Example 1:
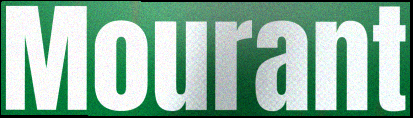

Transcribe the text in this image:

Mourant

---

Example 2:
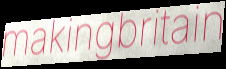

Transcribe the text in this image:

makingbritain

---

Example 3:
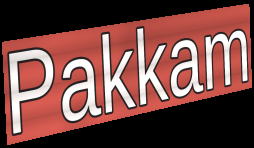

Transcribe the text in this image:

Pakkam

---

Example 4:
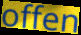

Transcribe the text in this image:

offen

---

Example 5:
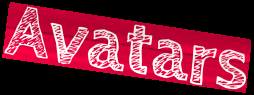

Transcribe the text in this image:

Avatars